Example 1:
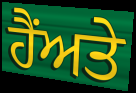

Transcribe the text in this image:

ਹੈਂਅਤੇ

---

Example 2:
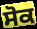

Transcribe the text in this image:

ਸੋਕ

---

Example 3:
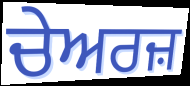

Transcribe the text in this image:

ਚੇਅਰਜ਼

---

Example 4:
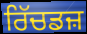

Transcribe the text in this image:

ਰਿੱਚਡਜ਼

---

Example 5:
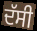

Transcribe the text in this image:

ਦੱਸੀ